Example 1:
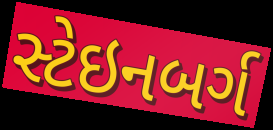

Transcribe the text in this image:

સ્ટેઇનબર્ગ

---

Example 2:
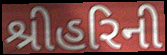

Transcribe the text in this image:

શ્રીહરિની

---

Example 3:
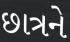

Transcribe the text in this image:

છાત્રને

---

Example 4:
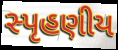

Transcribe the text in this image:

સ્પૃહણીય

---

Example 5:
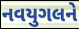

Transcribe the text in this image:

નવયુગલને